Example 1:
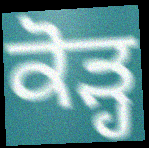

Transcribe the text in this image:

ਕੋੜ੍ਹ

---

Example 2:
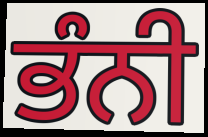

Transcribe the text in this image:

ਭੰਨੀ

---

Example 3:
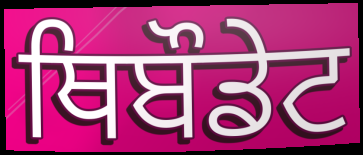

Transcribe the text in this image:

ਥਿਬੌਡੇਟ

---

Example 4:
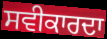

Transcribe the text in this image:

ਸਵੀਕਾਰਦਾ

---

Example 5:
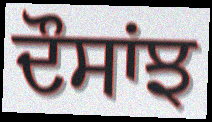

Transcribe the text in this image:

ਦੌਸਾਂਝ